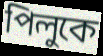
পিলুকে